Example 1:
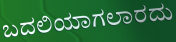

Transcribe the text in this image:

ಬದಲಿಯಾಗಲಾರದು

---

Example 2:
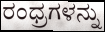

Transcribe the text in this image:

ರಂಧ್ರಗಳನ್ನು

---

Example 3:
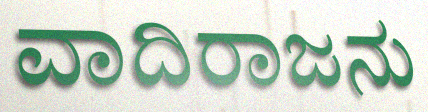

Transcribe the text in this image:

ವಾದಿರಾಜನು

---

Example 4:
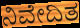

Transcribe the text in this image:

ನಿವೇದಿತ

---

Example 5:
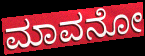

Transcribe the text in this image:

ಮಾವನೋ